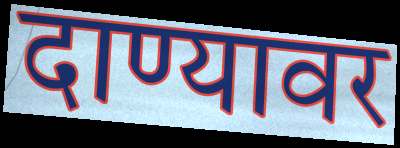
दाण्यावर